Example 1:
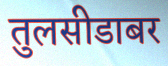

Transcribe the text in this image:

तुलसीडाबर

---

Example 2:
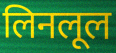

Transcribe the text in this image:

लिनलूल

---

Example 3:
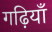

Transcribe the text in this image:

गढ़ियाँ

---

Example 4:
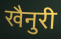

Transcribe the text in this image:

खैनुरी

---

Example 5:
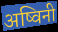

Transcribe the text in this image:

अष्विनी